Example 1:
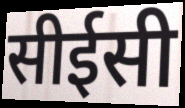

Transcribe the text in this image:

सीईसी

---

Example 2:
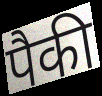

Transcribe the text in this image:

पैकी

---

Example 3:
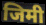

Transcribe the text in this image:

जिमी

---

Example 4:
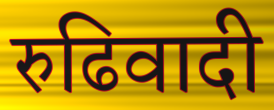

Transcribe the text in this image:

रुढिवादी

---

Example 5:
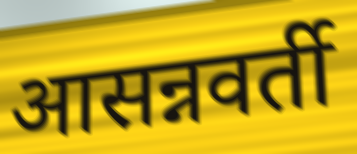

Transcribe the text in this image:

आसन्नवर्ती